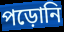
পড়োনি